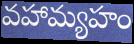
వహామ్యహం